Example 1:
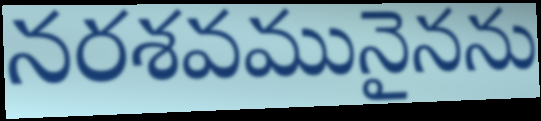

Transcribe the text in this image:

నరశవమునైనను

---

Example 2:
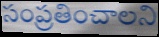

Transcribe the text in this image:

సంప్రతించాలని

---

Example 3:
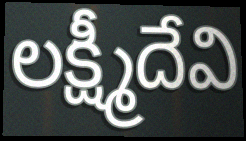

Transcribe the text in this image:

లక్ష్మీదేవి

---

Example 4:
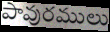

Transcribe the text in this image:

పావురములు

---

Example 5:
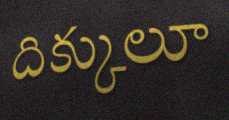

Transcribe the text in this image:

దిక్కులూ